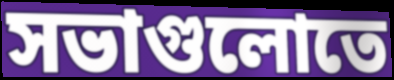
সভাগুলোতে